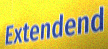
Extendend